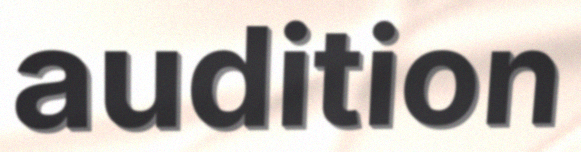
audition